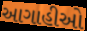
આગાહીઓ